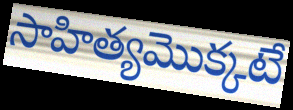
సాహిత్యమొక్కటే